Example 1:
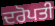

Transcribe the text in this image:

ਦਰੋਪਤੀ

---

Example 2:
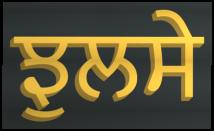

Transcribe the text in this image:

ਝੁਲਸੇ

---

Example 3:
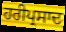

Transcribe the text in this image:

ਹਰੀਪ੍ਰਸਾਦ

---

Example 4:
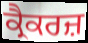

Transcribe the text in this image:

ਕ੍ਰੈਕਰਜ਼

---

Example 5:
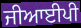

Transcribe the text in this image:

ਜੀਆਈਪੀ